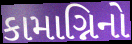
કામાગ્નિનો